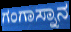
ಗಂಗಾಸ್ನಾನ